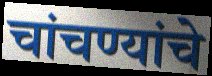
चांचण्यांचे